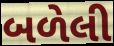
બળેલી